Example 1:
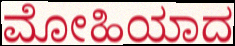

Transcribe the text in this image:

ಮೋಹಿಯಾದ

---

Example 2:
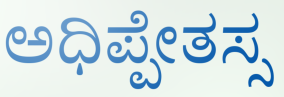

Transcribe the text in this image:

ಅಧಿಪ್ಪೇತಸ್ಸ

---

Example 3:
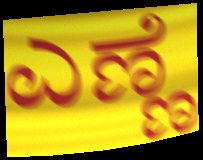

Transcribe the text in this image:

ಎಣ್ಣೆ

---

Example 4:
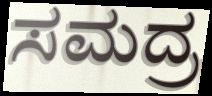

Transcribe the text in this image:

ಸಮದ್ರ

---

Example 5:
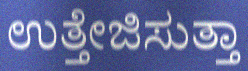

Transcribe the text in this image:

ಉತ್ತೇಜಿಸುತ್ತಾ